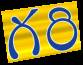
గరి